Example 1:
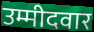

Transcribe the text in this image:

उम्‍मीदवार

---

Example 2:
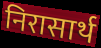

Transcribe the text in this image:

निरासार्थ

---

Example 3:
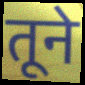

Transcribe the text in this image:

तूने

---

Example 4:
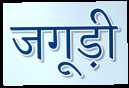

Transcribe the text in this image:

जगूड़ी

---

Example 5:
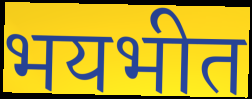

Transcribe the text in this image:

भयभीत